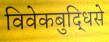
विवेकबुद्धिसे